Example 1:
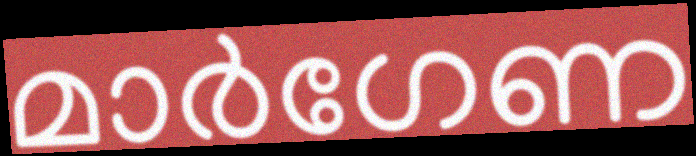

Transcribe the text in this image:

മാർഗേണ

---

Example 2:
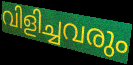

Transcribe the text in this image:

വിളിച്ചവരും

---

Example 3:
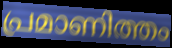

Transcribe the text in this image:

പ്രമാണിത്തം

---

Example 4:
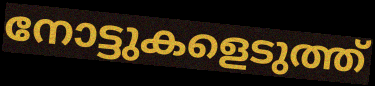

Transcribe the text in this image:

നോട്ടുകളെടുത്ത്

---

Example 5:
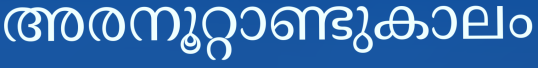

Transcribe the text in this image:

അരനൂറ്റാണ്ടുകാലം